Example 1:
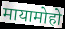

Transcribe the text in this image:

मायामोहो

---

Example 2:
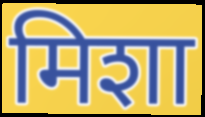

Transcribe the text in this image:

मिशा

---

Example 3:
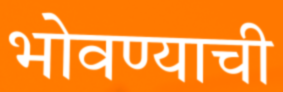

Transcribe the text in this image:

भोवण्याची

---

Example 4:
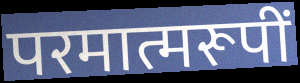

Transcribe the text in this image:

परमात्मरूपीं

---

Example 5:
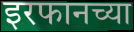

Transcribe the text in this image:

इरफानच्या